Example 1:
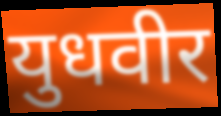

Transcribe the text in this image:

युधवीर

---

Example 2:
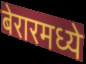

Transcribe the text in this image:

बेरारमध्ये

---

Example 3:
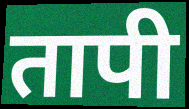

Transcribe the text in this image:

तापी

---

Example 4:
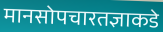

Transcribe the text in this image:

मानसोपचारतज्ञाकडे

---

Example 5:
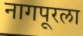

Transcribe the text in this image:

नागपूरला